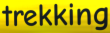
trekking